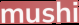
mushi